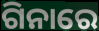
ଗିନାରେ